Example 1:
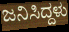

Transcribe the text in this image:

ಜನಿಸಿದ್ದಳು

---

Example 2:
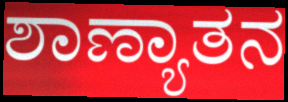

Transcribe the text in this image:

ಶಾಣ್ಯಾತನ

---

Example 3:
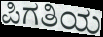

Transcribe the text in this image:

ಪಿಗತಿಯ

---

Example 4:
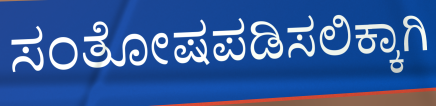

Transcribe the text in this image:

ಸಂತೋಷಪಡಿಸಲಿಕ್ಕಾಗಿ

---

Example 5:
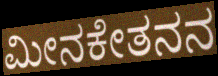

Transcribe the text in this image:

ಮೀನಕೇತನನ